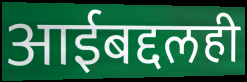
आईबद्दलही